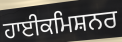
ਹਾਈਕਮਿਸ਼ਨਰ